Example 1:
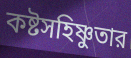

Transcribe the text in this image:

কষ্টসহিষ্ণুতার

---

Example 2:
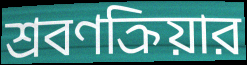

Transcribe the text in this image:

শ্রবণক্রিয়ার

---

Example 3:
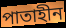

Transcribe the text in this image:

পাতাহীন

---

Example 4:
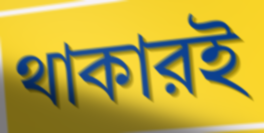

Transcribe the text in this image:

থাকারই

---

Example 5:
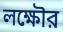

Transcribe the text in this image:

লক্ষৌর